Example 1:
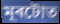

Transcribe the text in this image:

মূৰটোত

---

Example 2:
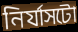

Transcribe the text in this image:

নিৰ্যাসটো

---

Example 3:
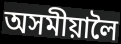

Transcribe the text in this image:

অসমীয়ালৈ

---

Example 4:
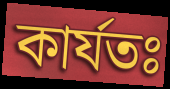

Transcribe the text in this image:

কাৰ্যতঃ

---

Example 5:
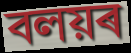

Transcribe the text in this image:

বলয়ৰ